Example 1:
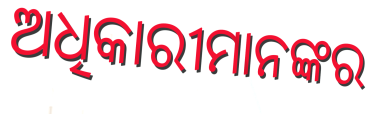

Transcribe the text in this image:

ଅଧିକାରୀମାନଙ୍କର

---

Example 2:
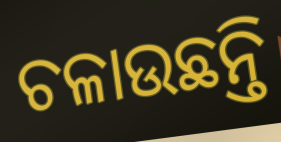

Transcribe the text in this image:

ଚଳାଉଛନ୍ତି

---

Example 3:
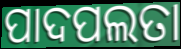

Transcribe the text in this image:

ପାଦପଲତା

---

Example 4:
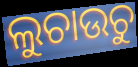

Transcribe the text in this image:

ଲୁଚାଉଚୁ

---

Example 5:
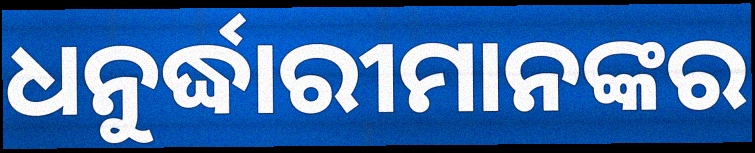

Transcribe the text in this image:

ଧନୁର୍ଦ୍ଧାରୀମାନଙ୍କର